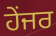
ਹੇਂਜਰ